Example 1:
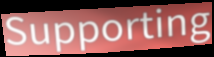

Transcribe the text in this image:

Supporting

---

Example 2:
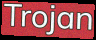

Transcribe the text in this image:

Trojan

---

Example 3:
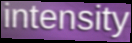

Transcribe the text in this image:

intensity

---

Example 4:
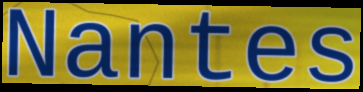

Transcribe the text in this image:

Nantes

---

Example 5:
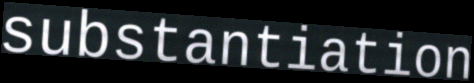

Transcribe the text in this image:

substantiation